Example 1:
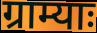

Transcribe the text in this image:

ग्राम्याः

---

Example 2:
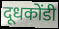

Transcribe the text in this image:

दूधकोंडी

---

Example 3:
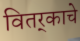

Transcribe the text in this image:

वितर्काचे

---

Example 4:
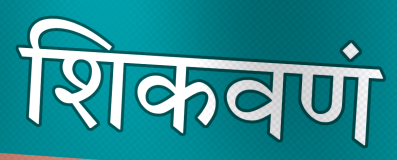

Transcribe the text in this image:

शिकवणं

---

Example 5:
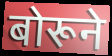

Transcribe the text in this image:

बोरूने